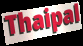
Thaipal